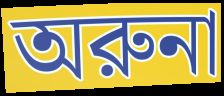
অরুনা